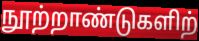
நூற்றாண்டுகளிற்